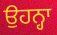
ਉਹਨ੍ਹਾ